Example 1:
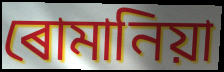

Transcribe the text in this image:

ৰোমানিয়া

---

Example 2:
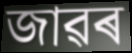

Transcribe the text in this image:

জাৱৰ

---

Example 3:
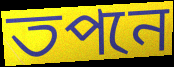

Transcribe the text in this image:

তপনে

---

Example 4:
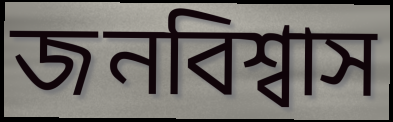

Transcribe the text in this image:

জনবিশ্বাস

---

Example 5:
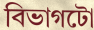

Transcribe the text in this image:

বিভাগটো